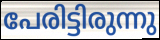
പേരിട്ടിരുന്നു